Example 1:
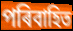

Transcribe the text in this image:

পৰিবাহিত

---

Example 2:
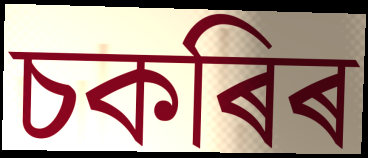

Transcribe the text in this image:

চকৰিৰ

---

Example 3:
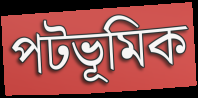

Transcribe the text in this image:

পটভূমিক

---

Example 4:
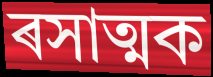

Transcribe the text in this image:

ৰসাত্মক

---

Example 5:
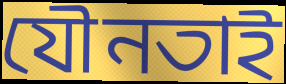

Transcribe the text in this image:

যৌনতাই